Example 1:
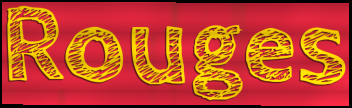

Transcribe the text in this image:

Rouges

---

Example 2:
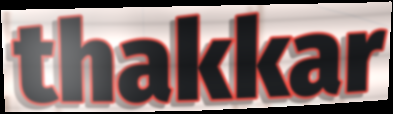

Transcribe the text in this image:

thakkar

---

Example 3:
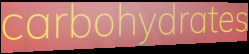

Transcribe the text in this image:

carbohydrates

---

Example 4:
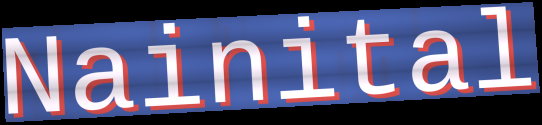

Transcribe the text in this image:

Nainital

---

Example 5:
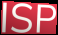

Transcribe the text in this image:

ISP